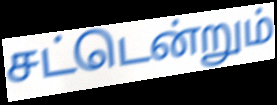
சட்டென்றும்